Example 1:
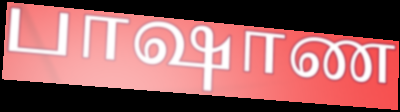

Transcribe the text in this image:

பாஷாண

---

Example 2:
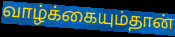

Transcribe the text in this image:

வாழ்க்கையும்தான்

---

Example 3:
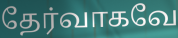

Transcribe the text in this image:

தேர்வாகவே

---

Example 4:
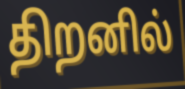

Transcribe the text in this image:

திறனில்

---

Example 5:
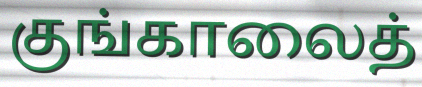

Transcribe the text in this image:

குங்காலைத்